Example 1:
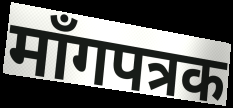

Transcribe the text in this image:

माँगपत्रक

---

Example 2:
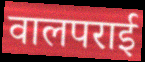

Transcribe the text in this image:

वालपराई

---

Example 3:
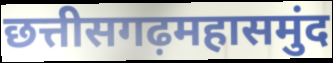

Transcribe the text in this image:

छत्तीसगढ़महासमुंद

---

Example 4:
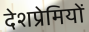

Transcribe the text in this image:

देशप्रेमियों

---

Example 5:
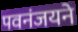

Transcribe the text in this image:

पवनंजयने